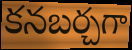
కనబర్చగా